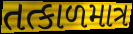
તત્કાળમાત્ર